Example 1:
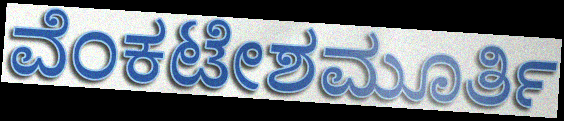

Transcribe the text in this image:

ವೆಂಕಟೇಶಮೂರ್ತಿ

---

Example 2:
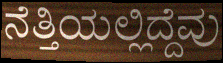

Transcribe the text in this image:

ನೆತ್ತಿಯಲ್ಲಿದ್ದೆವು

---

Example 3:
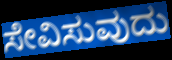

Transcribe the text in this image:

ಸೇವಿಸುವುದು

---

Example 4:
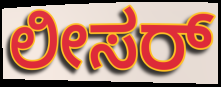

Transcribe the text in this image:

ಲೀಸರ್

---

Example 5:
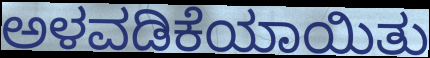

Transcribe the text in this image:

ಅಳವಡಿಕೆಯಾಯಿತು